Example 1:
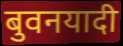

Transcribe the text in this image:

बुवनयादी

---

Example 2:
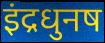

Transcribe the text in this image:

इंद्रधुनष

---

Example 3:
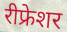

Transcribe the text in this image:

रीफ्रेशर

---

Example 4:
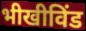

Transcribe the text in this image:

भीखीविंड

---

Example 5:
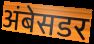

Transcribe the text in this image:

अंबेसडर